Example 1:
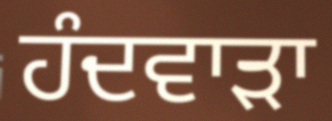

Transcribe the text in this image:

ਹੰਦਵਾੜਾ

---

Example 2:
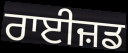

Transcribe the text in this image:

ਰਾਈਜ਼ਡ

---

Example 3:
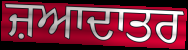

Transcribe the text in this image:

ਜ਼ਆਦਾਤਰ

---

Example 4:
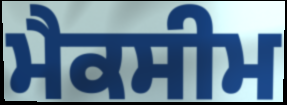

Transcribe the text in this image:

ਮੈਕਸੀਮ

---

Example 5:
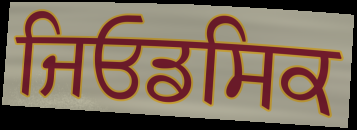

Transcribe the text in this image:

ਜਿਓਡਸਿਕ